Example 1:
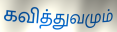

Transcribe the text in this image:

கவித்துவமும்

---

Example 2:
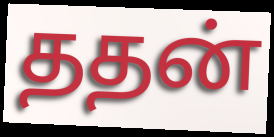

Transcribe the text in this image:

ததன்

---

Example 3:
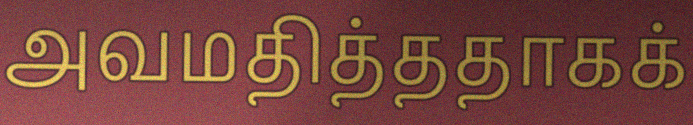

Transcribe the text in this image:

அவமதித்ததாகக்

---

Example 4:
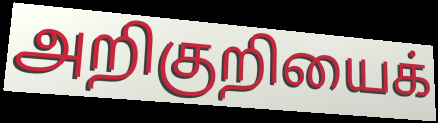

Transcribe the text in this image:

அறிகுறியைக்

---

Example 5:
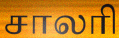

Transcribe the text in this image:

சாலரி